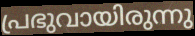
പ്രഭുവായിരുന്നു